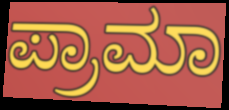
ಪ್ರಾಮಾ